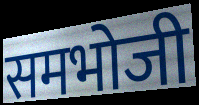
समभोजी